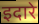
इदारे